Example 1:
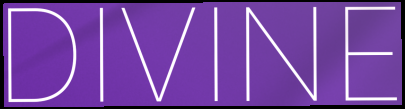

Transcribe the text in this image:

DIVINE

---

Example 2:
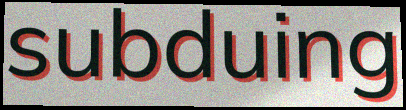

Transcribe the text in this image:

subduing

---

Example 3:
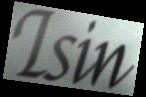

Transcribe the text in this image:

Isin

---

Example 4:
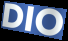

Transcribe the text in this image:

DIO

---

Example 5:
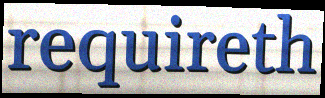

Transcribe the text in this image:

requireth